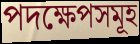
পদক্ষেপসমূহ